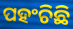
ପହଂଚିଛି